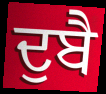
ਦੁਬੈ